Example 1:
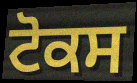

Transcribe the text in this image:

ਟੋਕਸ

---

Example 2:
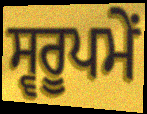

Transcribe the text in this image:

ਸ੍ਵਰੂਪਮੇਂ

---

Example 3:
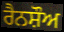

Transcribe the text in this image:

ਰੈਨਸ਼ੌਅ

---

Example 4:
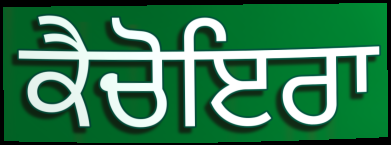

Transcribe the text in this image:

ਕੈਚੋਇਰਾ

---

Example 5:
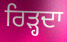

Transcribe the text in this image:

ਰਿੜ੍ਹਦਾ